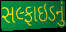
સલ્ફાઇડનું